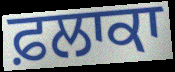
ਫ਼ਲਾਕਾ